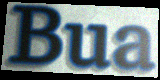
Bua